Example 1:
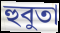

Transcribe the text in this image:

হুবুতা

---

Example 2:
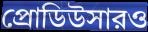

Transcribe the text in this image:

প্রোডিউসারও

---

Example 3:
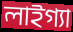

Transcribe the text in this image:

লাইগ্যা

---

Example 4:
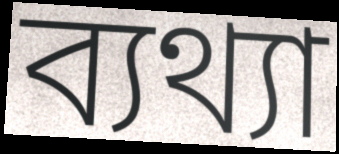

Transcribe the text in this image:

ব্যথ্যা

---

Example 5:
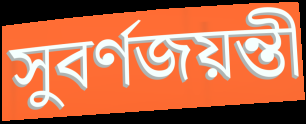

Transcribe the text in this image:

সুবর্ণজয়ন্তী